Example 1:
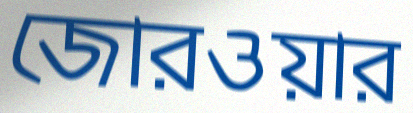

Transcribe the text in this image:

জোরওয়ার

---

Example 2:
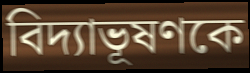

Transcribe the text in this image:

বিদ্যাভূষণকে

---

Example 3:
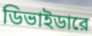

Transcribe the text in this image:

ডিভাইডারে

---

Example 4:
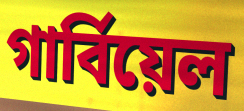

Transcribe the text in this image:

গার্বিয়েল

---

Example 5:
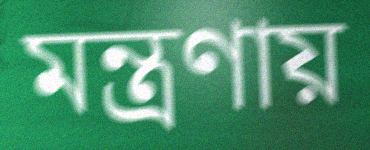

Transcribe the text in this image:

মন্ত্রণায়